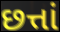
છત્તાં